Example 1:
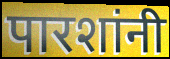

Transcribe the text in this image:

पारशांनी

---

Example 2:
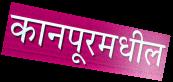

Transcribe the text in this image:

कानपूरमधील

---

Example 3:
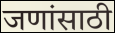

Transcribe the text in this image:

जणांसाठी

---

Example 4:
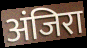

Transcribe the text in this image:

अंजिरा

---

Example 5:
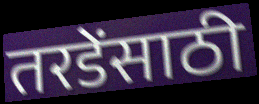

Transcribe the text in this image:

तरडेंसाठी